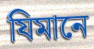
যিমানে